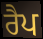
ਰੈਪ